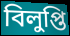
বিলুপ্তি